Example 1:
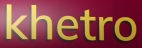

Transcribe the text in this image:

khetro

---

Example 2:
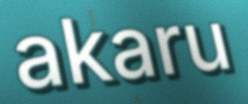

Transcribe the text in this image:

akaru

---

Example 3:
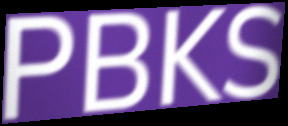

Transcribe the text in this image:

PBKS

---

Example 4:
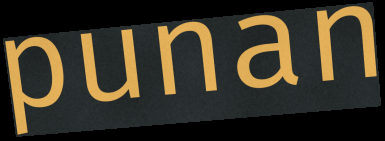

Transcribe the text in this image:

punan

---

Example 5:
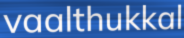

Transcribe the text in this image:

vaalthukkal